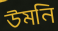
উমনি